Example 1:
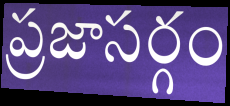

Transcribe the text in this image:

ప్రజాసర్గం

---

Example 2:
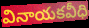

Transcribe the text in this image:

వినాయకవీధి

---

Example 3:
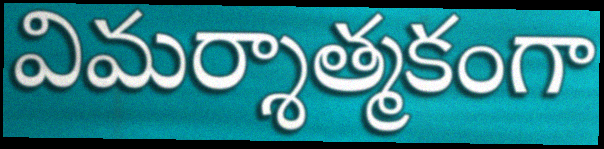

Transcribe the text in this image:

విమర్శాత్మకంగా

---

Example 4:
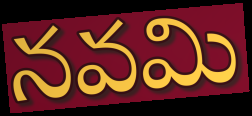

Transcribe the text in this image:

నవమి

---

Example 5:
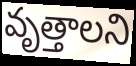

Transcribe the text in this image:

వృత్తాలని